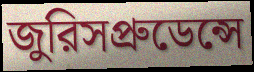
জুরিসপ্রুডেন্সে